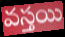
వస్తయి